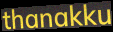
thanakku